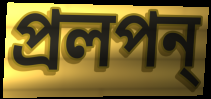
প্রলপন্